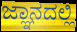
ಜ್ಞಾನದಲ್ಲಿ